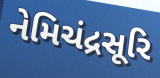
નેમિચંદ્રસૂરિ